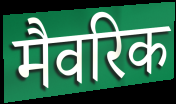
मैवरिक